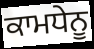
ਕਾਮਧੇਨੂ